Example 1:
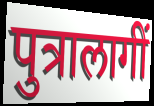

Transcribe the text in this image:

पुत्रालागीं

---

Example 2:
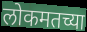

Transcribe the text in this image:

लोकमतच्या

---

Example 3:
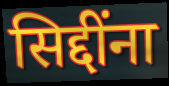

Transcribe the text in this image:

सिद्दींना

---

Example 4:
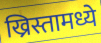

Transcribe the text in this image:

ख्रिस्तामध्ये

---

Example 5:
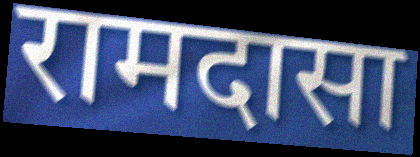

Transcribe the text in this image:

रामदासा